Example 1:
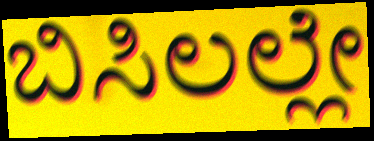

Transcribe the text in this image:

ಬಿಸಿಲಲ್ಲೇ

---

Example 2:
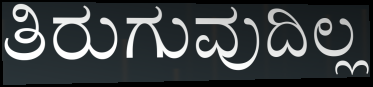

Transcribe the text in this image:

ತಿರುಗುವುದಿಲ್ಲ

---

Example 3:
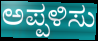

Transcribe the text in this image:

ಅಪ್ಪಳಿಸು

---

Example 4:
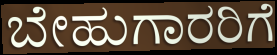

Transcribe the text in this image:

ಬೇಹುಗಾರರಿಗೆ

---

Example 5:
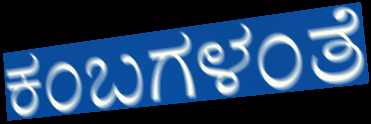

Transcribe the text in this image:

ಕಂಬಗಳಂತೆ